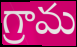
గ్రామ